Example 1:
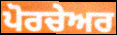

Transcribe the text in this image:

ਪੋਰਚੇਅਰ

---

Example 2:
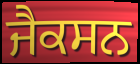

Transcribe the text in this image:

ਜੈਕਸਨ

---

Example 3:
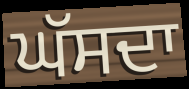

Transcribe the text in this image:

ਘੱਸਦਾ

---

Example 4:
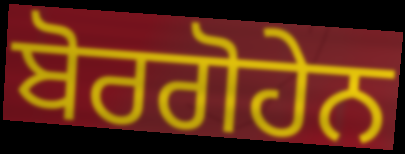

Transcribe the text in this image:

ਬੋਰਗੋਹੇਨ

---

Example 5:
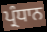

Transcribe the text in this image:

ਪ੍ਰੰਧਾਨ